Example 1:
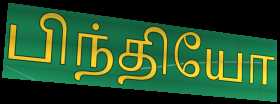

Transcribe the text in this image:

பிந்தியோ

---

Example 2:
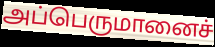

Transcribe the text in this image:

அப்பெருமானைச்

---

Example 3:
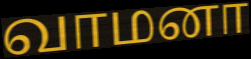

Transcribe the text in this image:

வாமனா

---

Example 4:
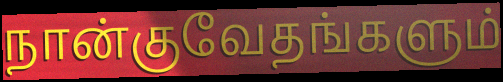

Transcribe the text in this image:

நான்குவேதங்களும்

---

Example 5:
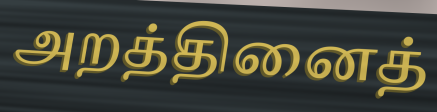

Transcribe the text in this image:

அறத்தினைத்